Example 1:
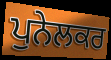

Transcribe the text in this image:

ਪੁਨੇਲਕਰ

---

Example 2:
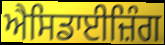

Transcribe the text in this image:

ਐਸਿਡਾਈਜ਼ਿੰਗ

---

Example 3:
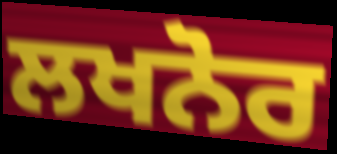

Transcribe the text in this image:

ਲਖਨੋਰ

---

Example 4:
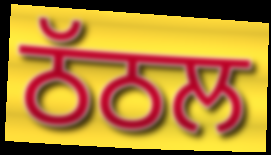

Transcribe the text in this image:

ਠੱਠਲ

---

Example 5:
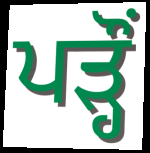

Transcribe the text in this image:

ਪੜ੍ਹੌਂ